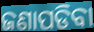
ଜଣାପଡିବା